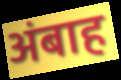
अंबाह